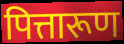
पित्तारूण